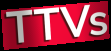
TTVs